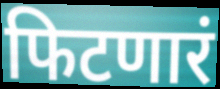
फिटणारं